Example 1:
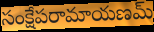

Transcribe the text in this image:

సంక్షేపరామాయణమ్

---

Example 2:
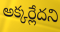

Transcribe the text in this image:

అక్కర్లేదని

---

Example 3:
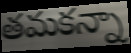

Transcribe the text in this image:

తమకన్నా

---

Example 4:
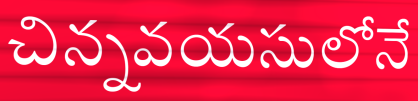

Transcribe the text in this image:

చిన్నవయసులోనే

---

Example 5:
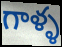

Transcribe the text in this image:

గాళ్ళ